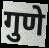
गुणे